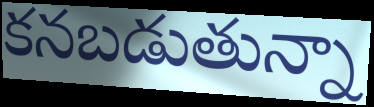
కనబడుతున్నా